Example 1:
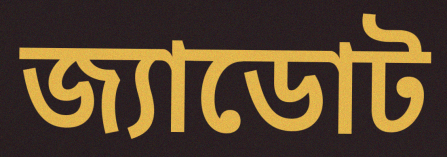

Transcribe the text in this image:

জ্যাডোট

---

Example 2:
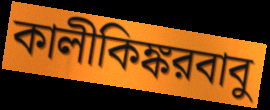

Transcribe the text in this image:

কালীকিঙ্করবাবু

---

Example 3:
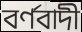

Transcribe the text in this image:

বর্ণবাদী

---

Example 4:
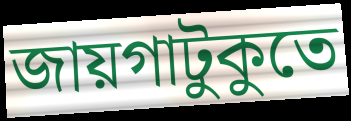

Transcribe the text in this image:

জায়গাটুকুতে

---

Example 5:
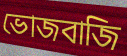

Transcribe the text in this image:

ভোজবাজি